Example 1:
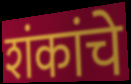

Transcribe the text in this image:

शंकांचे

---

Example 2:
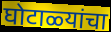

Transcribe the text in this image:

घोटाळ्यांचा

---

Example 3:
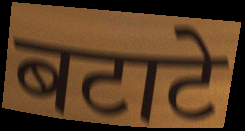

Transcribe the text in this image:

बटाटे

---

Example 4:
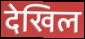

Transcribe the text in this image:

देखिल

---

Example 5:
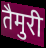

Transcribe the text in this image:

तैमुरी